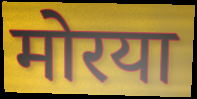
मोरया